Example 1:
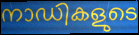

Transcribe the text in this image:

നാഡികളുടെ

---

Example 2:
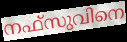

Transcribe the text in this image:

നഫ്സുവിനെ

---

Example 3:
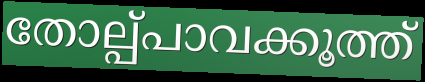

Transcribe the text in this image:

തോല്പ്പാവക്കൂത്ത്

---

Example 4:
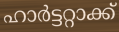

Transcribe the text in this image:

ഹാർട്ടറ്റാക്ക്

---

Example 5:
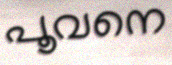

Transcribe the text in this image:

പൂവനെ